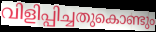
വിളിപ്പിച്ചതുകൊണ്ടും